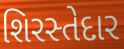
શિરસ્તેદાર